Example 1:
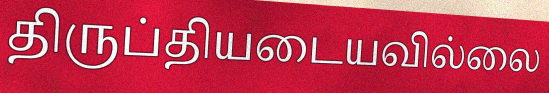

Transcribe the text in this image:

திருப்தியடையவில்லை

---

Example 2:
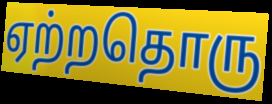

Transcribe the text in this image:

ஏற்றதொரு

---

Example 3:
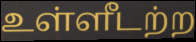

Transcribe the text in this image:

உள்ளீடற்ற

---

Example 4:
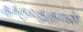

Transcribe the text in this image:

ஆக்குவதுதான்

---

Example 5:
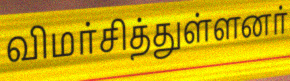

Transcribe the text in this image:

விமர்சித்துள்ளனர்